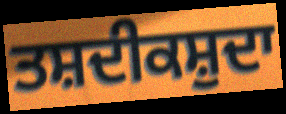
ਤਸ਼ਦੀਕਸ਼ੁਦਾ